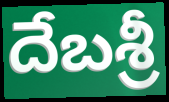
దేబశ్రీ